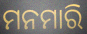
ମନମାରି